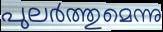
പുലർത്തുമെന്നു